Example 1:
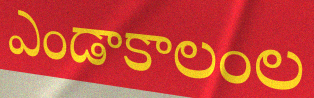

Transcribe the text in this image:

ఎండాకాలంల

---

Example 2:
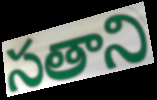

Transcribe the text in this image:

సతాని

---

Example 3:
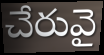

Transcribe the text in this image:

చేరువై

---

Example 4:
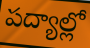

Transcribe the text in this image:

పద్యాల్లో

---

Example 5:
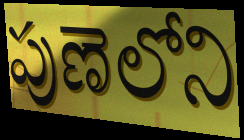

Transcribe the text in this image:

పుణెలోని